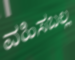
ವಹಿಸಬಲ್ಲ